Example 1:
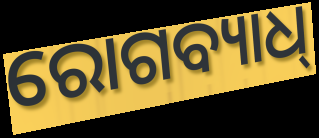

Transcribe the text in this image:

ରୋଗବ୍ୟାଧ୍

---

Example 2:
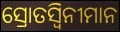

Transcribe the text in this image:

ସ୍ରୋତସ୍ୱିନୀମାନ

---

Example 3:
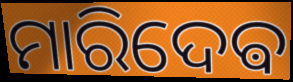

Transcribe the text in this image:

ମାରିଦେଵ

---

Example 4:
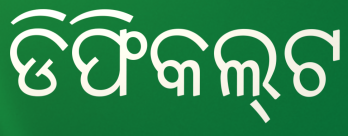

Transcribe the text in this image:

ଡିଫିକଲ୍‌ଟ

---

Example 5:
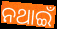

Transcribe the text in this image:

ନଥାଇଁ